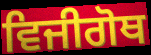
ਵਿਜੀਗੋਥ